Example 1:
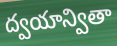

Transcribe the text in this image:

ద్వయాన్వితా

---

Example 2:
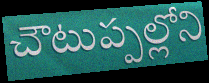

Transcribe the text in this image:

చౌటుప్పల్లోని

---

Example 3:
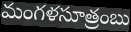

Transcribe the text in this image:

మంగళసూత్రంబు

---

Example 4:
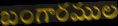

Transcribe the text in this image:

బంగారముల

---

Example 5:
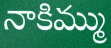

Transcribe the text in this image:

నాకిమ్ము